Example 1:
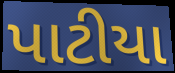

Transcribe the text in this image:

પાટીયા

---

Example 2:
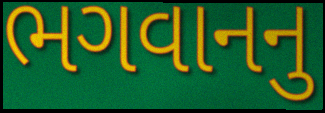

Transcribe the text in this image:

ભગવાનનુ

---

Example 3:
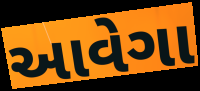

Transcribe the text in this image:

આવેગા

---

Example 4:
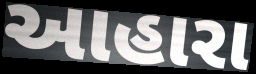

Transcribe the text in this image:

આહારા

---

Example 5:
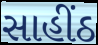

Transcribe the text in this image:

સાહીંઠ